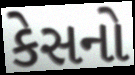
કેસનો